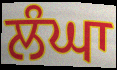
ਲੰਘਾ